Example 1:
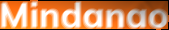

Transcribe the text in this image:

Mindanao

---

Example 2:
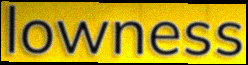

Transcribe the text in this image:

lowness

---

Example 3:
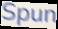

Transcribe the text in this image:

Spun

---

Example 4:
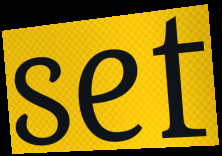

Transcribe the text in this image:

set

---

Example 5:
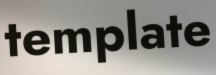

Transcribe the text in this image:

template